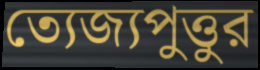
ত্যেজ্যপুত্তুর